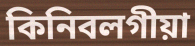
কিনিবলগীয়া